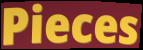
Pieces